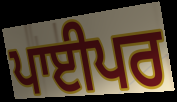
ਪਾਈਪਰ